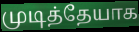
முடித்தேயாக